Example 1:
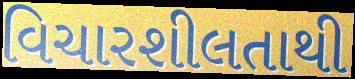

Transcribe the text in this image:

વિચારશીલતાથી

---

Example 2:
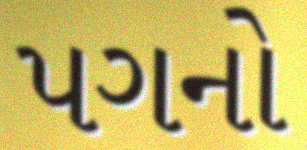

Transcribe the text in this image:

પગનો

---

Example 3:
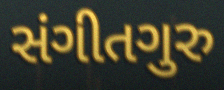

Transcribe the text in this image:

સંગીતગુરુ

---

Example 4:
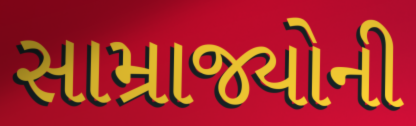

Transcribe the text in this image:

સામ્રાજ્યોની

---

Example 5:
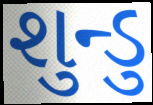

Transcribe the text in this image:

શુન્ડુ